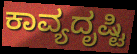
ಕಾವ್ಯದೃಷ್ಟಿ